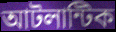
আটলান্টিক